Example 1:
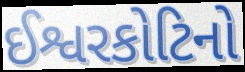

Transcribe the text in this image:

ઈશ્વરકોટિનો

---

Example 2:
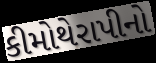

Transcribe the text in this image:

કીમોથેરાપીનો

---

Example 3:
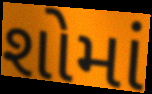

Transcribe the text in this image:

શોમાં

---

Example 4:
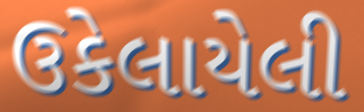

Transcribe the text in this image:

ઉકેલાયેલી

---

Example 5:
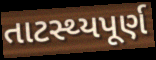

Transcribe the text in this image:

તાટસ્થ્યપૂર્ણ